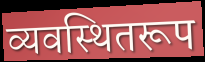
व्यवस्थितरूप